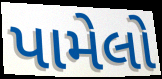
પામેલો